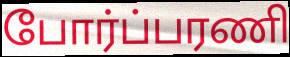
போர்ப்பரணி